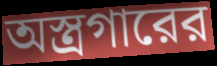
অস্ত্রগারের